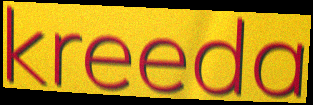
kreeda